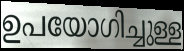
ഉപയോഗിച്ചുള്ള